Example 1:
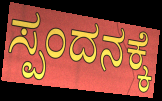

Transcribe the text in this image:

ಸ್ಪಂದನಕ್ಕೆ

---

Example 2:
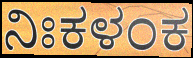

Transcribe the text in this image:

ನಿಃಕಳಂಕ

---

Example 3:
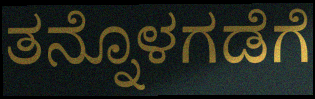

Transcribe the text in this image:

ತನ್ನೊಳಗಡೆಗೆ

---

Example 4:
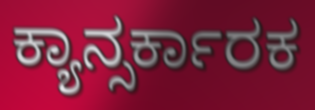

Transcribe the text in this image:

ಕ್ಯಾನ್ಸರ್ಕಾರಕ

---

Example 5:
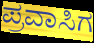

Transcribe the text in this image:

ಪ್ರವಾಸಿಗ